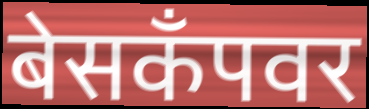
बेसकॅंपवर